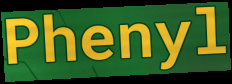
Phenyl